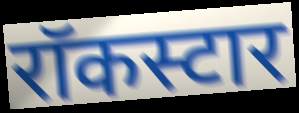
रॉकस्टार